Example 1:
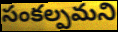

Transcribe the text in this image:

సంకల్పమని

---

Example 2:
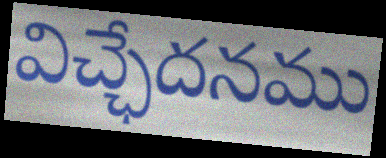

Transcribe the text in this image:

విచ్ఛేదనము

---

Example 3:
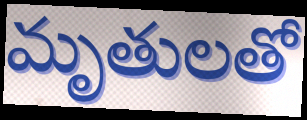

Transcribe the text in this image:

మృతులతో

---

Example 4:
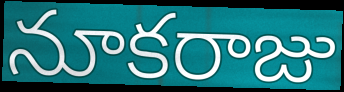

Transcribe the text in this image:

నూకరాజు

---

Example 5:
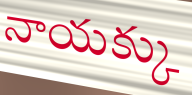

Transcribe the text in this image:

నాయక్కు